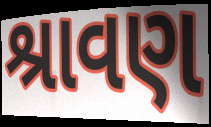
શ્રાવણ